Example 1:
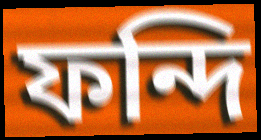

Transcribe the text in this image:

ফন্দি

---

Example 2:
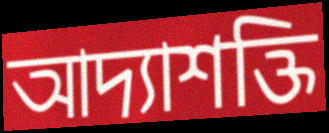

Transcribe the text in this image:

আদ্যাশক্তি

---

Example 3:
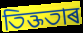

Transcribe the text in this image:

তিক্ততাৰ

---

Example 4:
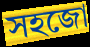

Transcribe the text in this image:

সহজো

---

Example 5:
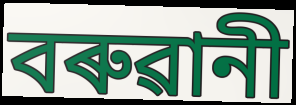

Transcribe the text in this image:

বৰুৱানী